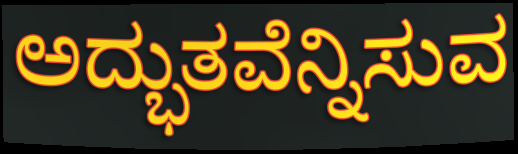
ಅದ್ಭುತವೆನ್ನಿಸುವ